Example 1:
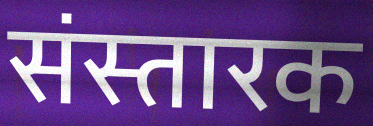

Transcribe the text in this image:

संस्तारक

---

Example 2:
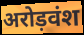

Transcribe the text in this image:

अरोड़वंश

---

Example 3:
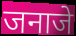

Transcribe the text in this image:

जनाजे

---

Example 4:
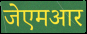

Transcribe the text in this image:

जेएमआर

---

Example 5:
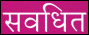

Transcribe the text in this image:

सवधित